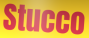
Stucco